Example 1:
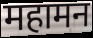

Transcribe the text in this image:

महामन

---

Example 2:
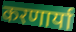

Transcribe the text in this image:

करणार्या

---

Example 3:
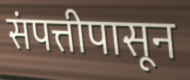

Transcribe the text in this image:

संपत्तीपासून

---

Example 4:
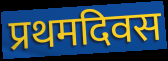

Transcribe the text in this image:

प्रथमदिवस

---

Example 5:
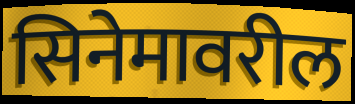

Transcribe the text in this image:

सिनेमावरील